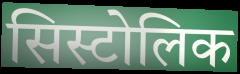
सिस्टोलिक